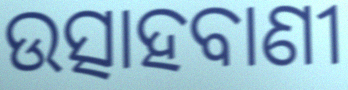
ଉତ୍ସାହବାଣୀ